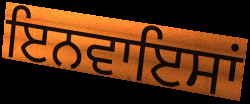
ਇਨਵਾਇਸਾਂ